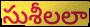
సుశీలలా